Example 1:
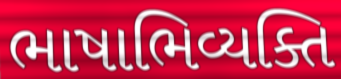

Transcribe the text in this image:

ભાષાભિવ્યક્તિ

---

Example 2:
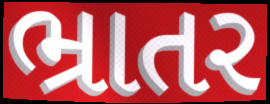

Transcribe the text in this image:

ભ્રાતર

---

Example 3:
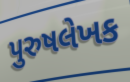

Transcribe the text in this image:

પુરુષલેખક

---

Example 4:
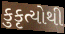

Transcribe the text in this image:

કુકૃત્યોથી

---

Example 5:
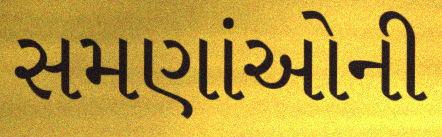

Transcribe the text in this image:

સમણાંઓની